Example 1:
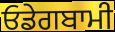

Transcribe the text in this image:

ਓਡੇਗਬਾਮੀ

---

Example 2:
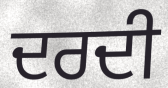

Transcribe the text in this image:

ਦਰਦੀ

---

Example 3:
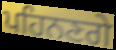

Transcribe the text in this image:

ਪਹਿਨਣਗੇ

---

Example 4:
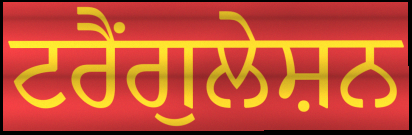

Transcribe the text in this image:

ਟਰੈਂਗੁਲੇਸ਼ਨ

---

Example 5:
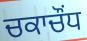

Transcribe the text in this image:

ਚਕਾਚੌਂਧ